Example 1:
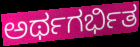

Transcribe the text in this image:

ಅರ್ಥಗರ್ಭಿತ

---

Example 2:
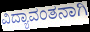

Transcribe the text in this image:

ವಿದ್ಯಾವಂತನಾಗಿ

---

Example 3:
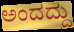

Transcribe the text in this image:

ಅಂದದ್ದು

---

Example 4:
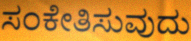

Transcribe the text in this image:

ಸಂಕೇತಿಸುವುದು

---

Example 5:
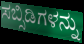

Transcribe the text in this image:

ಸಬ್ಸಿಡಿಗಳನ್ನು